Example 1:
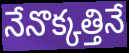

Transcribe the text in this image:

నేనొక్కత్తినే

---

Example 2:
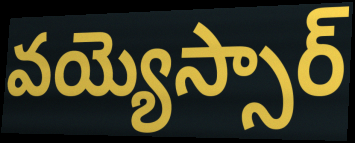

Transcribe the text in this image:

వయ్యెస్సార్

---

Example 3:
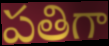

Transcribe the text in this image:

పతిగా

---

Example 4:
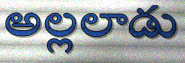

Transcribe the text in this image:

అల్లలాడు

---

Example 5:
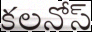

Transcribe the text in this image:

కలనోస్